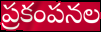
ప్రకంపనల